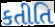
કતીતિ